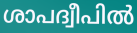
ശാപദ്വീപിൽ